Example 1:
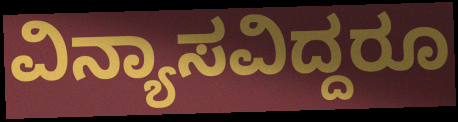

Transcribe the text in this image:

ವಿನ್ಯಾಸವಿದ್ದರೂ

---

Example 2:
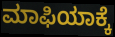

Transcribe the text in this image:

ಮಾಫಿಯಾಕ್ಕೆ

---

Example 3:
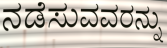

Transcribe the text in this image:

ನಡೆಸುವವರನ್ನು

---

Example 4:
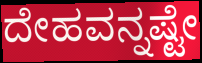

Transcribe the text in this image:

ದೇಹವನ್ನಷ್ಟೇ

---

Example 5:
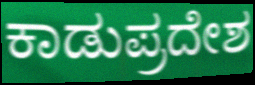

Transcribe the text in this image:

ಕಾಡುಪ್ರದೇಶ